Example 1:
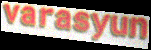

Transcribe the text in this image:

varasyun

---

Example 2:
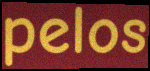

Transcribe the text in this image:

pelos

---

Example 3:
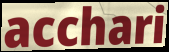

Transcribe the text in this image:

acchari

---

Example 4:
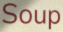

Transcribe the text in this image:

Soup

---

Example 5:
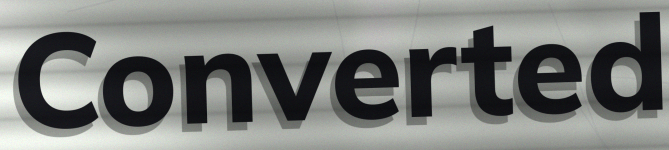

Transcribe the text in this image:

Converted